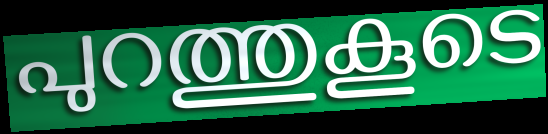
പുറത്തുകൂടെ